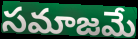
సమాజమే